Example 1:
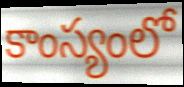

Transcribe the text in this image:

కాంస్యంలో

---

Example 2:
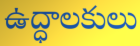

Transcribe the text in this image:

ఉద్ధాలకులు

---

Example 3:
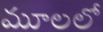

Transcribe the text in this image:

మూలలో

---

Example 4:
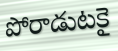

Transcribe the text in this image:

పోరాడుటకై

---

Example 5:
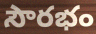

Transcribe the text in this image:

సౌరభం